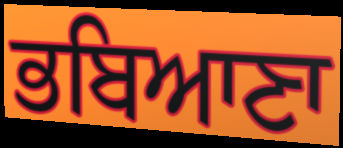
ਭਬਿਆਣਾ